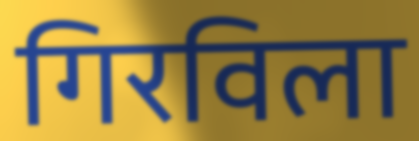
गिरविला